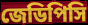
জেডিপিসি